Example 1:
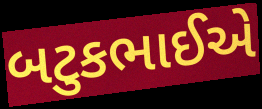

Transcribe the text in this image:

બટુકભાઈએ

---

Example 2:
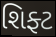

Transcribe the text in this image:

શિફ્ટ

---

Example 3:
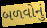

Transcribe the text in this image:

બળવોનું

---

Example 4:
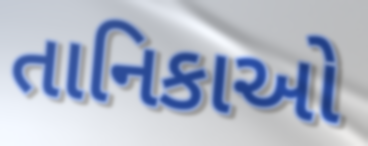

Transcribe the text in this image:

તાનિકાઓ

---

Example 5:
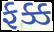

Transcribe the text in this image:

ફક્ક